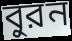
বুরন